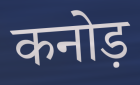
कनोड़